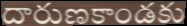
దారుణకాండకు